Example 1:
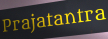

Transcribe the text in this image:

Prajatantra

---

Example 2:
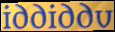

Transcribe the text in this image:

iddiddu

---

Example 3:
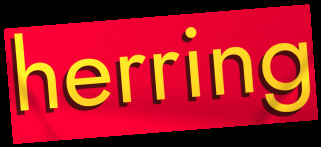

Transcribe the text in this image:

herring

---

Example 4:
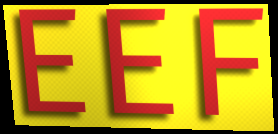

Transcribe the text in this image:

EEF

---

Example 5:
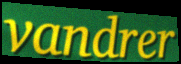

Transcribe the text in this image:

vandrer